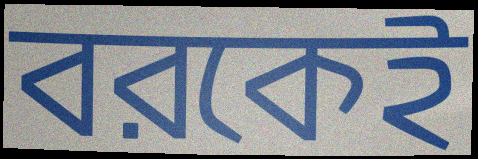
বরকেই